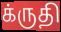
க்ருதி